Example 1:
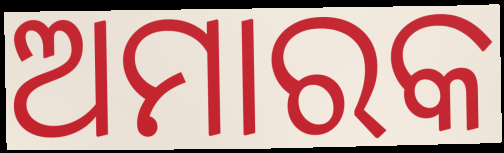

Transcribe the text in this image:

ଅମାରକ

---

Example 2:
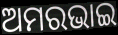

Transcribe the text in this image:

ଅମରଭାଇ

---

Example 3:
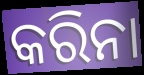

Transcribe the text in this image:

କରିନା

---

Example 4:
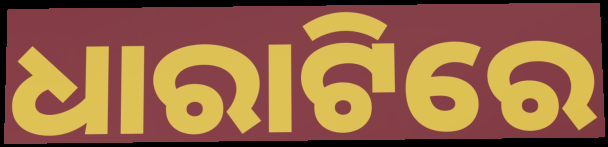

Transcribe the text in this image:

ଧାରାଟିରେ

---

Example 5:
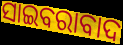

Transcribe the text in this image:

ସାଇବରାବାଦ